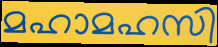
മഹാമഹസി